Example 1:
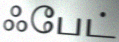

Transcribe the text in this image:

ஃபேட்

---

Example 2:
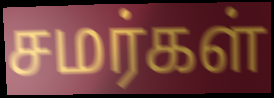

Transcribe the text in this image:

சமர்கள்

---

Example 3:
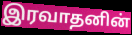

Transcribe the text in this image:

இரவாதனின்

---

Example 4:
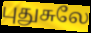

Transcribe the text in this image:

புதுசுலே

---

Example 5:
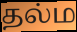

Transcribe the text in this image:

தல்ம